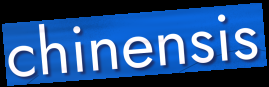
chinensis